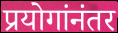
प्रयोगांनंतर